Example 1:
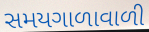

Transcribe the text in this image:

સમયગાળાવાળી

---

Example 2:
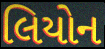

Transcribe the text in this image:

લિયોન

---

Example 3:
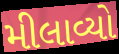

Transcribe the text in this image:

મીલાવ્યો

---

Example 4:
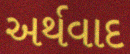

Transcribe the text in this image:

અર્થવાદ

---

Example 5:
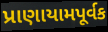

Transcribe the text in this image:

પ્રાણાયામપૂર્વક